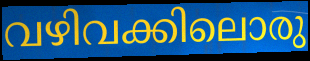
വഴിവക്കിലൊരു